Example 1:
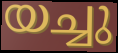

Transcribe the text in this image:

യച്ചു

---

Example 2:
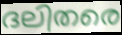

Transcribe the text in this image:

ദലിതരെ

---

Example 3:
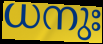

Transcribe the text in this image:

ധനുഃ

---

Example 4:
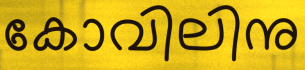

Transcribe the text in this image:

കോവിലിനു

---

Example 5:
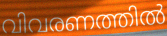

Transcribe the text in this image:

വിവരണത്തിൽ